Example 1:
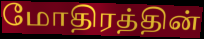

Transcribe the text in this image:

மோதிரத்தின்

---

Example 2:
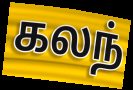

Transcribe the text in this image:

கலந்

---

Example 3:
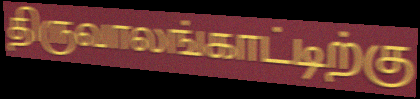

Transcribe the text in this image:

திருவாலங்காட்டிற்கு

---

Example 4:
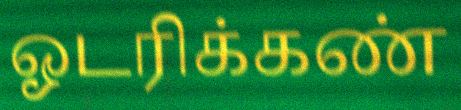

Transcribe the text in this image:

ஓடரிக்கண்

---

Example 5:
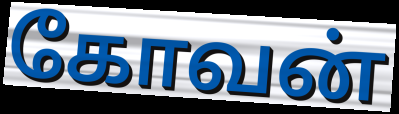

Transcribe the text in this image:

கோவன்